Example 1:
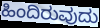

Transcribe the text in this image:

ಹಿಂದಿರುವುದು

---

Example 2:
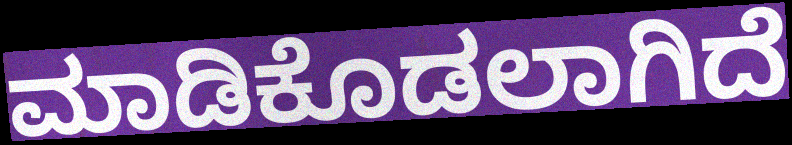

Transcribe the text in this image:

ಮಾಡಿಕೊಡಲಾಗಿದೆ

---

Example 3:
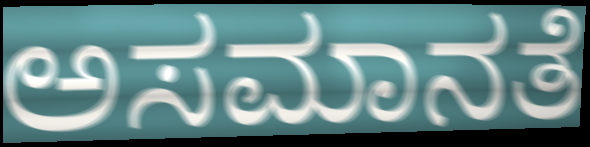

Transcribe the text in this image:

ಅಸಮಾನತೆ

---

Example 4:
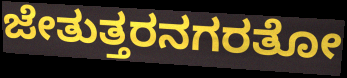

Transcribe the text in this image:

ಜೇತುತ್ತರನಗರತೋ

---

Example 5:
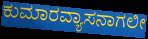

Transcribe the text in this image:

ಕುಮಾರವ್ಯಾಸನಾಗಲೀ